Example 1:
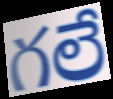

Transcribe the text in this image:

గలే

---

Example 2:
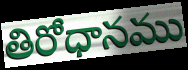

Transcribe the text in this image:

తిరోధానము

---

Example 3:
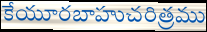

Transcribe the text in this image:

కేయూరబాహుచరిత్రము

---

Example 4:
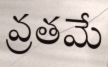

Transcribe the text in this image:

వ్రతమే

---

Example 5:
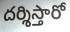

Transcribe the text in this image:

దర్శిస్తారో